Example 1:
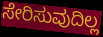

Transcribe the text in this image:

ಸೇರಿಸುವುದಿಲ್ಲ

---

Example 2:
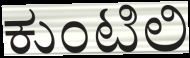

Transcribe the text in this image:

ಕುಂಟಿಲಿ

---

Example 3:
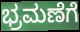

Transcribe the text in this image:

ಭ್ರಮಣೆಗೆ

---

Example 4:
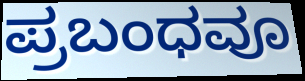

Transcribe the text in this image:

ಪ್ರಬಂಧವೂ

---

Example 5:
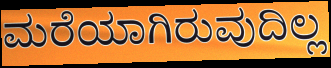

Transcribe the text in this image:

ಮರೆಯಾಗಿರುವುದಿಲ್ಲ